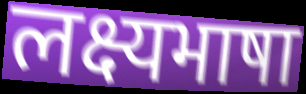
लक्ष्यभाषा